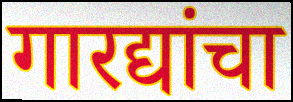
गारद्यांचा